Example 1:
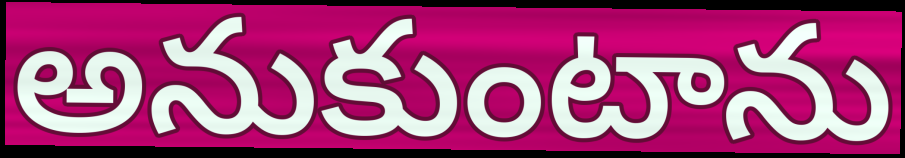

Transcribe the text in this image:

అనుకుంటాను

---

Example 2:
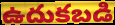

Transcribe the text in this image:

ఉదుకబడి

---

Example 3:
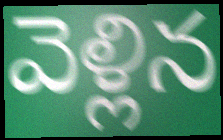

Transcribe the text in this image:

వెళ్లిన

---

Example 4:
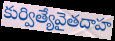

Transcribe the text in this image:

కుర్విత్యేవైతదాహ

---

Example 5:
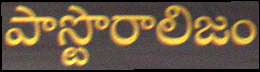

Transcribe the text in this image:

పాస్టొరాలిజం